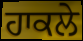
ਹਾਕਲੇ